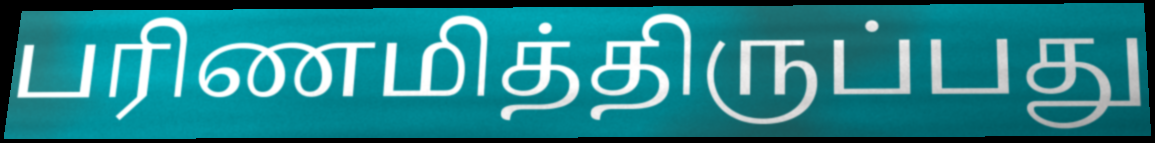
பரிணமித்திருப்பது